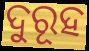
ଦୁରୂହ